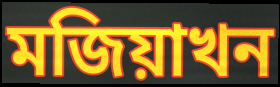
মজিয়াখন